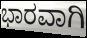
ಭಾರವಾಗಿ